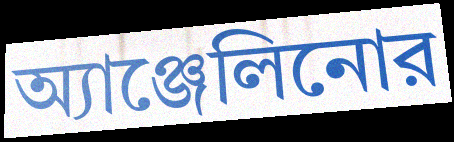
অ্যাঞ্জেলিনোর